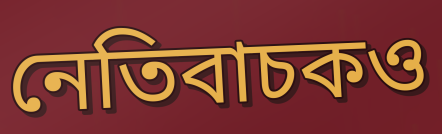
নেতিবাচকও